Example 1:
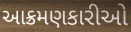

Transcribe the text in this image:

આક્રમણકારીઓ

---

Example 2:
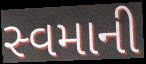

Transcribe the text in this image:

સ્વમાની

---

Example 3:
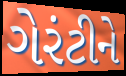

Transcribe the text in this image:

ગેરંટીને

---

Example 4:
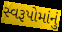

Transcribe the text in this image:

સ્વરૂપોમાંનું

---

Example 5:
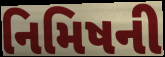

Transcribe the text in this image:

નિમિષની